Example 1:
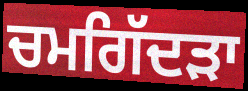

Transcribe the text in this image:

ਚਮਗਿੱਦੜਾ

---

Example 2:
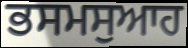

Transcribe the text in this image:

ਭਸਮਸੁਆਹ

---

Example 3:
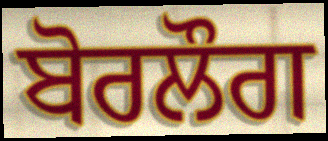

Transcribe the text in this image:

ਬੋਰਲੌਗ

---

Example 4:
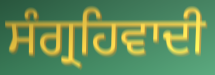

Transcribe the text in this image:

ਸੰਗ੍ਰਹਿਵਾਦੀ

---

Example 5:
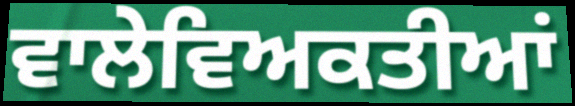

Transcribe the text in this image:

ਵਾਲੇਵਿਅਕਤੀਆਂ